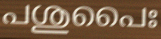
പശുപൈഃ